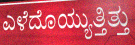
ಎಳೆದೊಯ್ಯುತ್ತಿತ್ತು